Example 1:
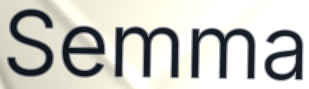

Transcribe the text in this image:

Semma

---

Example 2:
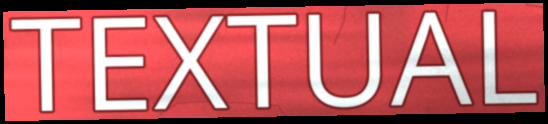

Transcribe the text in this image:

TEXTUAL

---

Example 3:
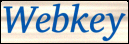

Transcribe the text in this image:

Webkey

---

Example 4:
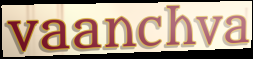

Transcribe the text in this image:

vaanchva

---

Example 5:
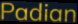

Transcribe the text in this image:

Padian